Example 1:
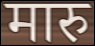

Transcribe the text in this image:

मारु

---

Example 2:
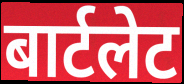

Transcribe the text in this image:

बार्टलेट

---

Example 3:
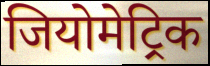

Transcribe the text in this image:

जियोमेट्रिक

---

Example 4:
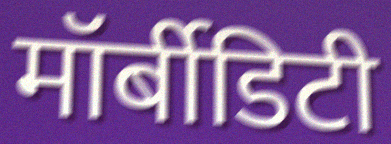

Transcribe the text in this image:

मॉर्बीडिटी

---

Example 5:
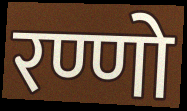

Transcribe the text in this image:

रण्णो